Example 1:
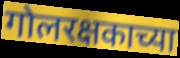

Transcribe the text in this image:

गोलरक्षकाच्या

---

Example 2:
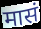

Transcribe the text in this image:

मासं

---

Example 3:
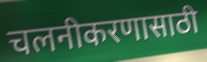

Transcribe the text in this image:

चलनीकरणासाठी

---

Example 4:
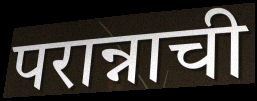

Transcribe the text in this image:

परान्नाची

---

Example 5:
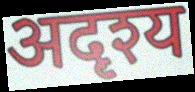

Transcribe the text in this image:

अदृश्य